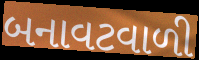
બનાવટવાળી